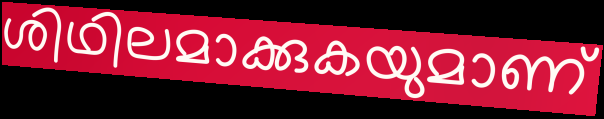
ശിഥിലമാക്കുകയുമാണ്